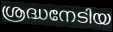
ശ്രദ്ധനേടിയ